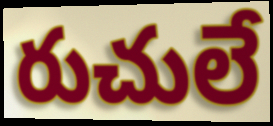
రుచులే